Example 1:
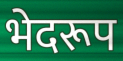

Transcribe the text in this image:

भेदरूप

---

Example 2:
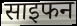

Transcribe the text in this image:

साइफन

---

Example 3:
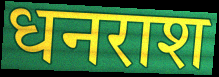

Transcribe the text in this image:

धनराश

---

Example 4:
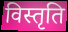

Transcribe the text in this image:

विस्तृति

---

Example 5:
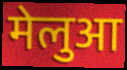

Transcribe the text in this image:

मेलुआ